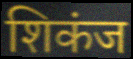
शिकंज